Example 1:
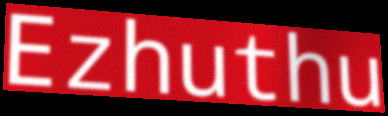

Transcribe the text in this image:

Ezhuthu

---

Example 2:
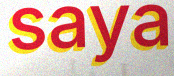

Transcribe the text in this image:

saya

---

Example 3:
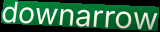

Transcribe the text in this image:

downarrow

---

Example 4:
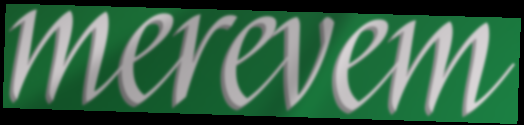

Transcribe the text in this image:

merevem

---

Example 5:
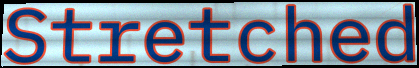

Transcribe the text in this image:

Stretched